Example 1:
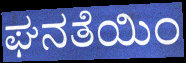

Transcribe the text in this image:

ಘನತೆಯಿಂ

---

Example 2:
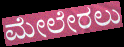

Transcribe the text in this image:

ಮೇಲೇರಲು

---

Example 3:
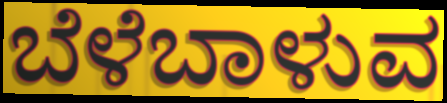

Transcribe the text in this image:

ಬೆಳೆಬಾಳುವ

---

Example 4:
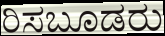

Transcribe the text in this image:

ರಿಸಬೂಡರು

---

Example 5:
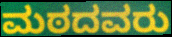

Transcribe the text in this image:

ಮಠದವರು